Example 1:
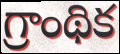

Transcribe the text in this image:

గ్రాంథిక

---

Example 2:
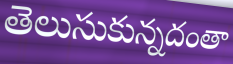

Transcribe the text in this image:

తెలుసుకున్నదంతా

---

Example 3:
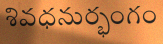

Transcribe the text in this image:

శివధనుర్భంగం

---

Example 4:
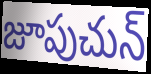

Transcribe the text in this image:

జూపుచున్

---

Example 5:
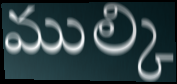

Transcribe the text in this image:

ముల్కి